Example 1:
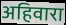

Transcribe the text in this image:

अहिवारा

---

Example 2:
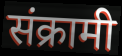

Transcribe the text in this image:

संक्रामी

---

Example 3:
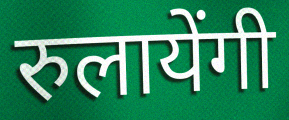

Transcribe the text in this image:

रुलायेंगी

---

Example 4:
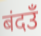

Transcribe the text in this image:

बंदउँ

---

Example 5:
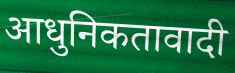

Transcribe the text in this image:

आधुनिकतावादी